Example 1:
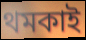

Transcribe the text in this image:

থমকাই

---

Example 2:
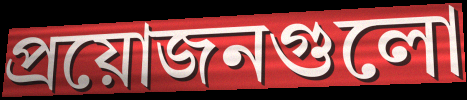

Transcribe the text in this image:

প্রয়োজনগুলো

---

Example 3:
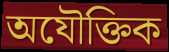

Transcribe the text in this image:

অযৌক্তিক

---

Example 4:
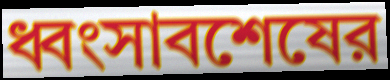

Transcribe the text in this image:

ধ্বংসাবশেষের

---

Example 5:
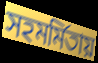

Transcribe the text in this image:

সহমর্মিতায়